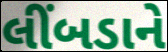
લીંબડાને